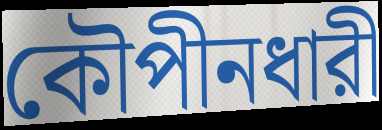
কৌপীনধারী